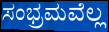
ಸಂಭ್ರಮವೆಲ್ಲ